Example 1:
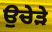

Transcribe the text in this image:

ਉਚੇੜੇ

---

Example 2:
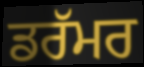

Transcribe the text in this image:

ਡਰੱਮਰ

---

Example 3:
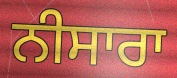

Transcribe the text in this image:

ਨੀਸਾਰਾ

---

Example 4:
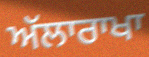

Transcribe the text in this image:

ਅੱਲਾਰਾਖਾ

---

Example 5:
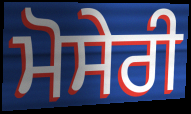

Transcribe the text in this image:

ਮੋਸੇਰੀ